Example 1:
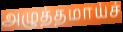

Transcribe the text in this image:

அழுத்தமாய்ச்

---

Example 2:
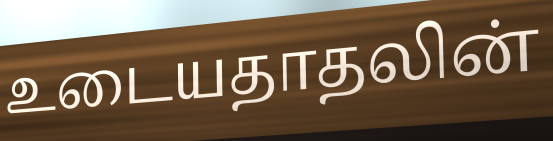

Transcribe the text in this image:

உடையதாதலின்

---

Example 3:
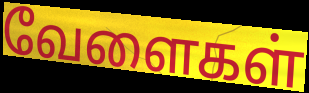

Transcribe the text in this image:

வேளைகள்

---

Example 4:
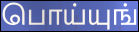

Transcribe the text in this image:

பொய்யுங்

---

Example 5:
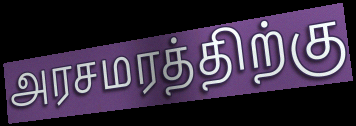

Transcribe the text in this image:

அரசமரத்திற்கு